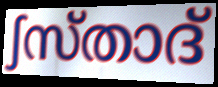
ഽസ്താദ്